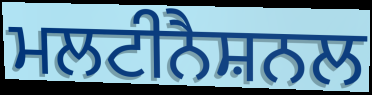
ਮਲਟੀਨੈਸ਼ਨਲ